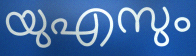
യുഎസും